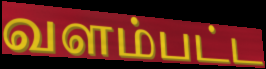
வளம்பட்ட